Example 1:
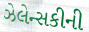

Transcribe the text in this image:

ઝેલેન્સકીની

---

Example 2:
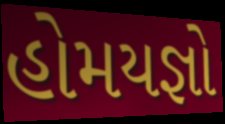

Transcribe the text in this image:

હોમયજ્ઞો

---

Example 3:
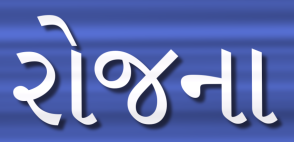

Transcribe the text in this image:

રોજના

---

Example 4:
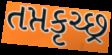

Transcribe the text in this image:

તપ્તકૃચ્છ્ર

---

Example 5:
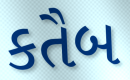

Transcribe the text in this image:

કતૈબ